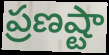
ప్రణష్టా